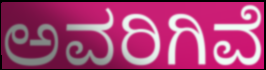
ಅವರಿಗಿವೆ